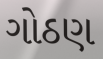
ગોઠણ